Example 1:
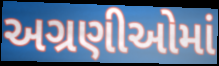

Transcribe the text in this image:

અગ્રણીઓમાં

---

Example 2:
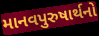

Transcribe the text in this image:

માનવપુરુષાર્થનો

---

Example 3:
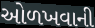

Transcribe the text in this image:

ઓળખવાની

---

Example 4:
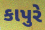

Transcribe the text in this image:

કાપુરે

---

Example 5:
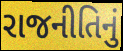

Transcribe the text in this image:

રાજનીતિનું